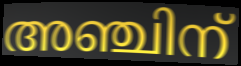
അഞ്ചിന്